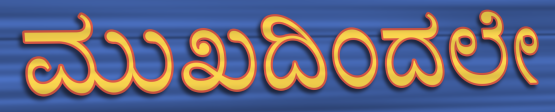
ಮುಖದಿಂದಲೇ